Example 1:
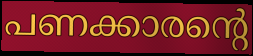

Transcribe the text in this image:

പണക്കാരന്റെ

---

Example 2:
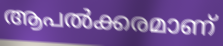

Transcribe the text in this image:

ആപൽക്കരമാണ്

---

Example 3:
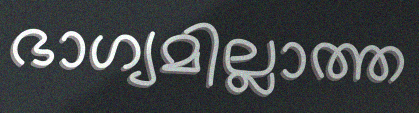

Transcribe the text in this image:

ഭാഗ്യമില്ലാത്ത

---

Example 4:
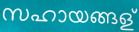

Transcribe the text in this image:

സഹായങ്ങള്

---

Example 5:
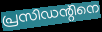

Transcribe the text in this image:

പ്രസിഡന്റിനെ